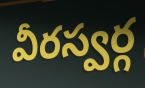
వీరస్వర్గ